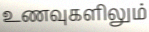
உணவுகளிலும்